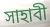
সাহাবী